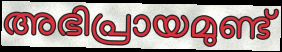
അഭിപ്രായമുണ്ട്